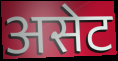
असेट